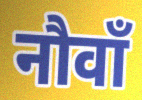
नौवाँ